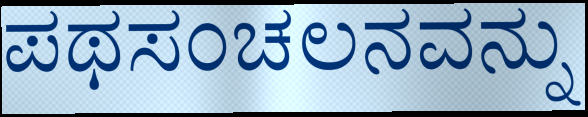
ಪಥಸಂಚಲನವನ್ನು